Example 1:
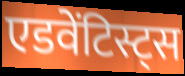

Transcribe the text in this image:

एडवेंटिस्ट्स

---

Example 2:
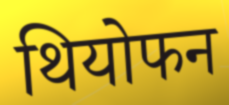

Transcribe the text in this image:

थियोफन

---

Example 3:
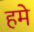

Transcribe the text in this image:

हमे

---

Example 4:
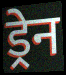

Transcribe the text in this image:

ड्रेन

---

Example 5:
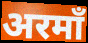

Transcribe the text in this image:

अरमाँ